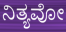
ನಿತ್ಯವೋ